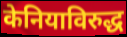
केनियाविरुद्ध